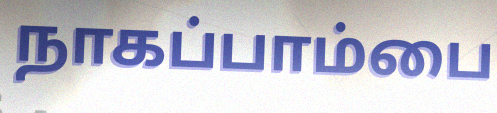
நாகப்பாம்பை